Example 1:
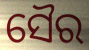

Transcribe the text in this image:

ସୈର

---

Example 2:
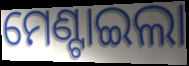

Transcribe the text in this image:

ମେଣ୍ଟାଇଲା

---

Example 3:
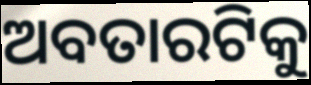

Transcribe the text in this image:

ଅବତାରଟିକୁ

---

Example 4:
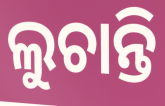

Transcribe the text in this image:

ଲୁଚାନ୍ତି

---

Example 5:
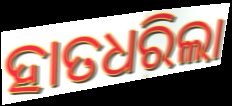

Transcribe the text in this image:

ହାତଧରିଲା